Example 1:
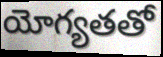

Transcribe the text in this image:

యోగ్యతతో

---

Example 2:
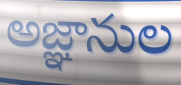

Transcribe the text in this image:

అజ్ఞానుల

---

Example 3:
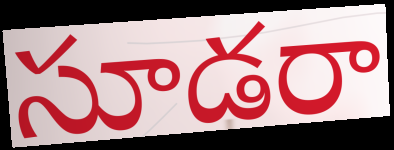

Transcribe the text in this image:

సూడరా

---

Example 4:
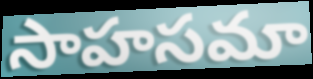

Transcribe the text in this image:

సాహసమా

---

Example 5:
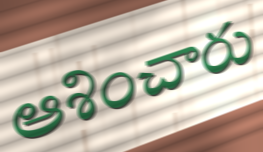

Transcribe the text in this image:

ఆశించారు